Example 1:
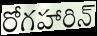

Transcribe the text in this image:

రోగహారిన్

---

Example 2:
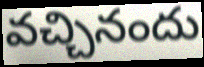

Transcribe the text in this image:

వచ్చినందు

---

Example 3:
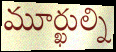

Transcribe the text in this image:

మూర్ఖుల్ని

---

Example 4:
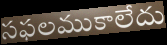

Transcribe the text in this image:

సఫలముకాలేదు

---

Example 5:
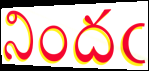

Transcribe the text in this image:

నిందఁ